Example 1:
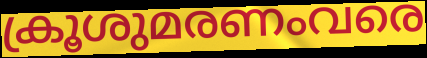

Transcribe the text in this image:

ക്രൂശുമരണംവരെ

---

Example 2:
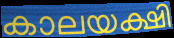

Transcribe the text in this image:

കാലയക്ഷി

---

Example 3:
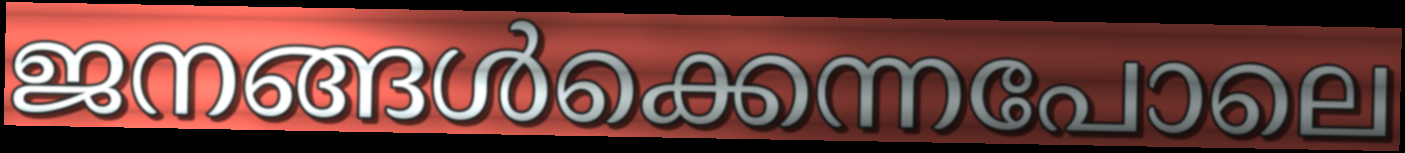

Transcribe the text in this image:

ജനങ്ങൾക്കെന്നപോലെ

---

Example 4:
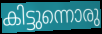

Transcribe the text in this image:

കിട്ടുന്നൊരു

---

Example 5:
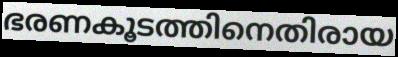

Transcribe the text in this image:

ഭരണകൂടത്തിനെതിരായ